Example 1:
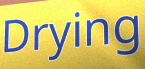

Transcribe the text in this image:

Drying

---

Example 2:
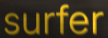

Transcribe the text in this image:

surfer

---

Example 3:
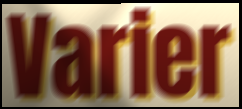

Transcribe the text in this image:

Varier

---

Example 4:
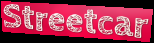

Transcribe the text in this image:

Streetcar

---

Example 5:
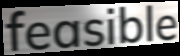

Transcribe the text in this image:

feasible